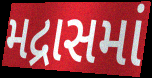
મદ્રાસમાં